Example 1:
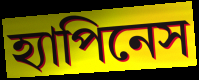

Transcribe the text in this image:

হ্যাপিনেস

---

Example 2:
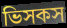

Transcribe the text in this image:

ভিসকস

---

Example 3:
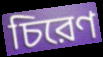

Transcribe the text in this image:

চিরেণ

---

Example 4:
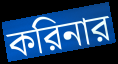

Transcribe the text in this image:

করিনার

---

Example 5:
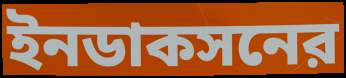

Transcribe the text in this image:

ইনডাকসনের